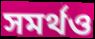
সমর্থও